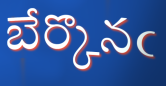
బేర్కొనఁ